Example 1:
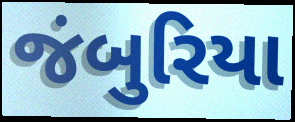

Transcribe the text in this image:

જંબુરિયા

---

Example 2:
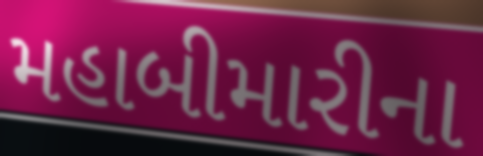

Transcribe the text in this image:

મહાબીમારીના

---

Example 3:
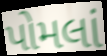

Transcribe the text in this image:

પોમલાં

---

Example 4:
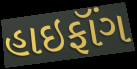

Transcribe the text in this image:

હાઇફૉંગ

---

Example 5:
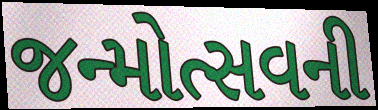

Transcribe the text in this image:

જન્મોત્સવની